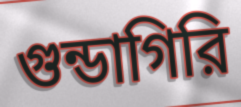
গুন্ডাগিরি